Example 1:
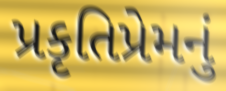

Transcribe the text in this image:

પ્રકૃતિપ્રેમનું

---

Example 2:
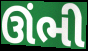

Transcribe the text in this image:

ઊંભી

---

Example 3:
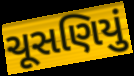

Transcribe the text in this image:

ચૂસણિયું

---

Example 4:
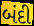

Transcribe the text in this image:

બંદી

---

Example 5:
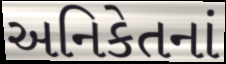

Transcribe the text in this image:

અનિકેતનાં